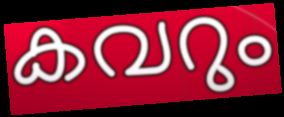
കവറും